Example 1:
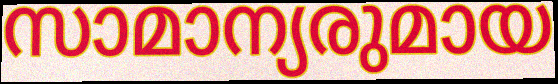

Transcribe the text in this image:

സാമാന്യരുമായ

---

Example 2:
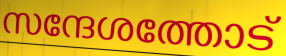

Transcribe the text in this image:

സന്ദേശത്തോട്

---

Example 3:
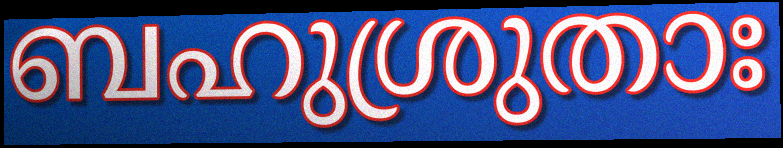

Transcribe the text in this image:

ബഹുശ്രുതാഃ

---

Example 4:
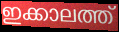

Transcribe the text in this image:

ഇക്കാലത്ത്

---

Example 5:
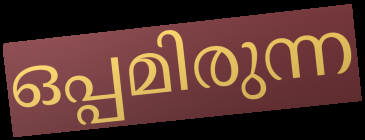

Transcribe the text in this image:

ഒപ്പമിരുന്ന